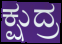
ಕ್ಷುದ್ರ